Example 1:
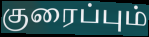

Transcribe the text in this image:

குரைப்பும்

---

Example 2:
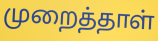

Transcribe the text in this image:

முறைத்தாள்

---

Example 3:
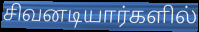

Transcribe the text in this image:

சிவனடியார்களில்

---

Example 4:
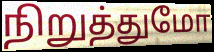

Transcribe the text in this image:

நிறுத்துமோ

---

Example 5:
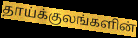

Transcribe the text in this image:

தாய்க்குலங்களின்